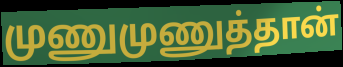
முணுமுணுத்தான்